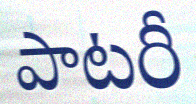
పాటరీ